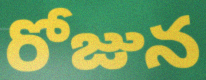
రోజున